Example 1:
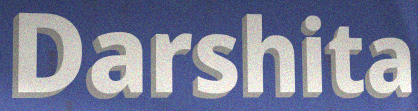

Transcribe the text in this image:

Darshita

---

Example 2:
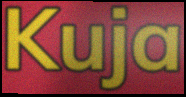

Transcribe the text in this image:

Kuja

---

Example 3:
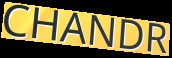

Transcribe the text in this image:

CHANDR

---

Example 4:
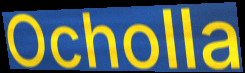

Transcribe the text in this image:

Ocholla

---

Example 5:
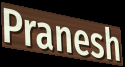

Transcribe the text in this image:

Pranesh